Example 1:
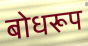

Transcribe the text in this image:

बोधरूप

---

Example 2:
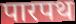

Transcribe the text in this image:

पारपथ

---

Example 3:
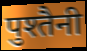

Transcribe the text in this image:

पुश्‍तैनी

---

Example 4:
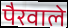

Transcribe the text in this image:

पैरवाले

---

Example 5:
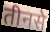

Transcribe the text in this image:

तीनसे